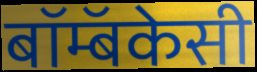
बॉम्बॅकेसी